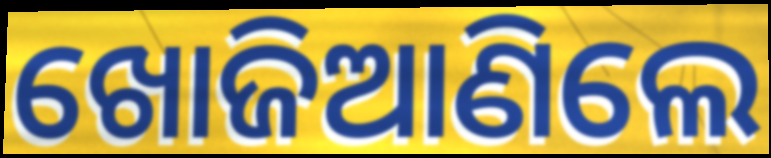
ଖୋଜିଆଣିଲେ